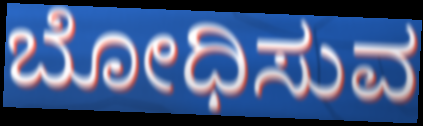
ಬೋಧಿಸುವ